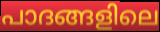
പാദങ്ങളിലെ